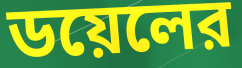
ডয়েলের